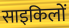
साइकिलों